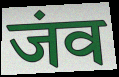
जंव